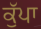
ਕੁੱਪਾ